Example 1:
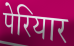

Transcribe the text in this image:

पेरियार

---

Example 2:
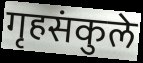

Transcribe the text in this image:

गृहसंकुले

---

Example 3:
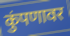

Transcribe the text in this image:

कुंपणावर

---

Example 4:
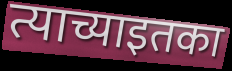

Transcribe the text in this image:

त्याच्याइतका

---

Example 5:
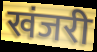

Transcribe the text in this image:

खंजरी